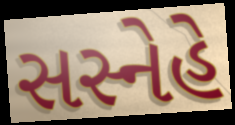
સસ્નેહે